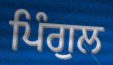
ਪਿੰਗੁਲ